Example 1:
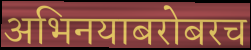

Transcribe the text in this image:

अभिनयाबरोबरच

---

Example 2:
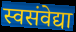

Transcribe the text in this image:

स्वसंवेद्या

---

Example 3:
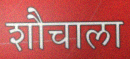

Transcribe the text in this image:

शौचाला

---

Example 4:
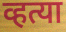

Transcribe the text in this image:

व्हत्या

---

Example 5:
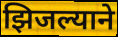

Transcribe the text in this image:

झिजल्याने